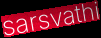
sarsvathi